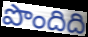
పొందిది